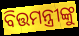
ବିତ୍ତମନ୍ତ୍ରୀଙ୍କୁ